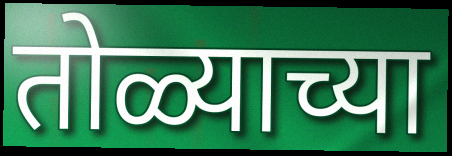
तोळ्याच्या